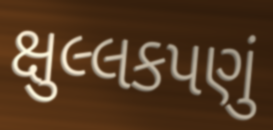
ક્ષુલ્લકપણું